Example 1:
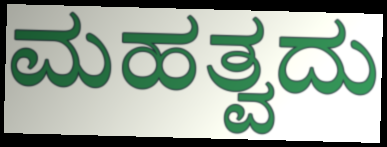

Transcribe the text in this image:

ಮಹತ್ವದು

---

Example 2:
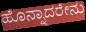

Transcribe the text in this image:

ಹೊನ್ನಾದರೇನು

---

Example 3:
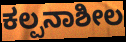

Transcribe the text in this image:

ಕಲ್ಪನಾಶೀಲ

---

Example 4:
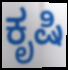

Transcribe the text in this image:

ಕೃಷಿ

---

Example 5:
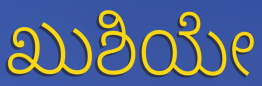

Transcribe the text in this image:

ಖುಶಿಯೇ